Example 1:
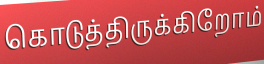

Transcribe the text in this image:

கொடுத்திருக்கிறோம்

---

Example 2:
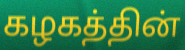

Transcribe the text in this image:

கழகத்தின்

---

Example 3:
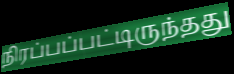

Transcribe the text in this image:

நிரப்பப்பட்டிருந்தது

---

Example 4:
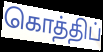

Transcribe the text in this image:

கொத்திப்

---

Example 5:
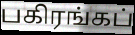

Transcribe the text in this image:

பகிரங்கப்